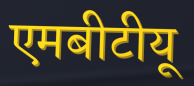
एमबीटीयू